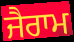
ਜੈਰਾਮ